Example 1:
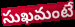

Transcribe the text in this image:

సుఖమంటే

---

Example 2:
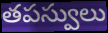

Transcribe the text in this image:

తపస్వులు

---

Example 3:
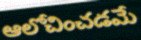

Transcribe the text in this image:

ఆలోచించడమే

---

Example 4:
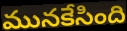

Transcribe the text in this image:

మునకేసింది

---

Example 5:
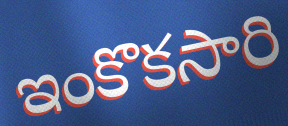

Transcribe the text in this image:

ఇంకొకసారి